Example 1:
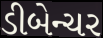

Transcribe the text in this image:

ડીબેન્ચર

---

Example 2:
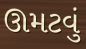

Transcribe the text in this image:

ઊમટવું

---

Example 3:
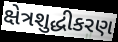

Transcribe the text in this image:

ક્ષેત્રશુદ્ધીકરણ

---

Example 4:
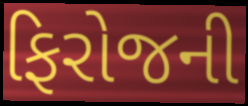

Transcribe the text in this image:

ફિરોજની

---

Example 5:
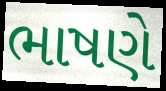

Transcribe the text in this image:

ભાષણે